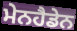
ਮੇਨਹੈਡੇਨ